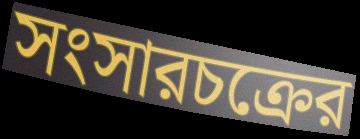
সংসারচক্রের